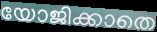
യോജിക്കാതെ